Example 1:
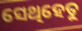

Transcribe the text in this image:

ସେଥିହେତୁ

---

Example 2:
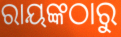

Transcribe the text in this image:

ରାୟଙ୍କଠାରୁ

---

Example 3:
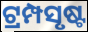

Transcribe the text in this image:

ଟ୍ରମ୍ପସୃଷ୍ଟ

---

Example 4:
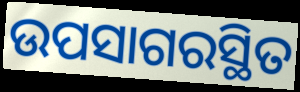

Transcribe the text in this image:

ଉପସାଗରସ୍ଥିତ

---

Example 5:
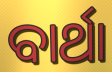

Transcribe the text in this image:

ବାର୍ଥା